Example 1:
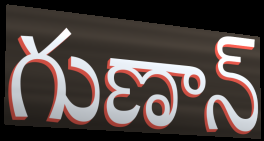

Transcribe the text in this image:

గుణాన్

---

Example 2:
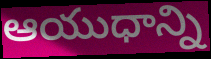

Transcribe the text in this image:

ఆయుధాన్ని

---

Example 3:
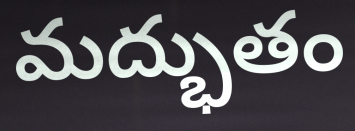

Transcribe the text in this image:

మద్భుతం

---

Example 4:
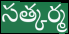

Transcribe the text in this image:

సత్కర్మ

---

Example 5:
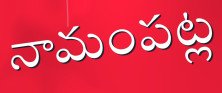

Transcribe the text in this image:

నామంపట్ల